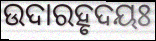
ଉଦାରହୃଦୟଃ